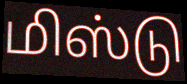
மிஸ்டு